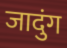
जादुंग